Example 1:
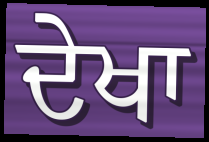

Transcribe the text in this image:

ਦੇਖਾ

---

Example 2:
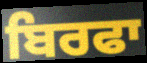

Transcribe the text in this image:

ਬਿਰਫਾ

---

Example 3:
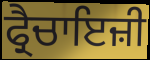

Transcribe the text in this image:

ਫ੍ਰੈਚਾਇਜ਼ੀ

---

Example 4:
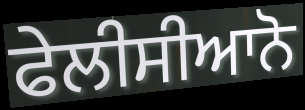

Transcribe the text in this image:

ਫੇਲੀਸੀਆਨੋ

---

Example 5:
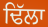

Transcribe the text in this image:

ਢਿੱਲਾ